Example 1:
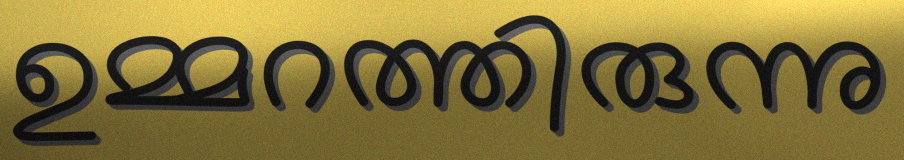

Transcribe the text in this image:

ഉമ്മറത്തിരുന്നു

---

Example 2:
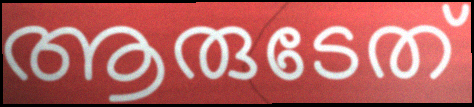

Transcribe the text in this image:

ആരുടേത്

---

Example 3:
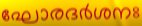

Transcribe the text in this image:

ഘോരദർശനഃ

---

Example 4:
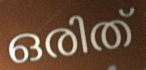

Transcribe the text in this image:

ഒരിത്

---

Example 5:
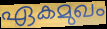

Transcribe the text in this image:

ഏകമുഖം